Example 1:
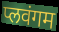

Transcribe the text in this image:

प्लवंगम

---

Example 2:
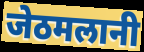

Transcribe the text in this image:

जेठमलानी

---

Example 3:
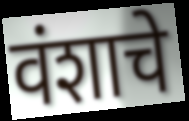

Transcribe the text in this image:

वंशाचे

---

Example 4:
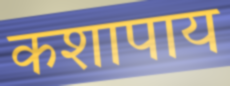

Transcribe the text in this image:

कशापाय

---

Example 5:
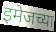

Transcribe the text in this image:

इमेजच्या